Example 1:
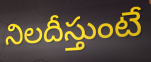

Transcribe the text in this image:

నిలదీస్తుంటే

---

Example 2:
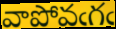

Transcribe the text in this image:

వాపోవఁగఁ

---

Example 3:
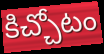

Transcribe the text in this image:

కిచ్చోటం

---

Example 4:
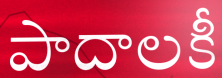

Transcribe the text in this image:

పాదాలకీ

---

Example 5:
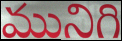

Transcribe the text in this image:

మునిగి